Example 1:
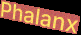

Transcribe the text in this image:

Phalanx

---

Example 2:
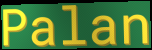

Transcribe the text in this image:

Palan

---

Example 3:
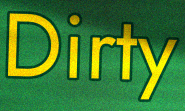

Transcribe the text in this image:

Dirty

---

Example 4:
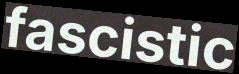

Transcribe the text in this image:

fascistic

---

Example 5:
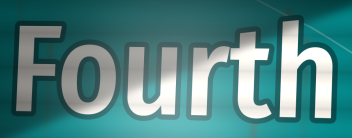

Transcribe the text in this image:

Fourth